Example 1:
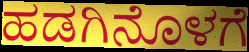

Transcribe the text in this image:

ಹಡಗಿನೊಳಗೆ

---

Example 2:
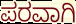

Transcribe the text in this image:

ಪರವಾಗಿ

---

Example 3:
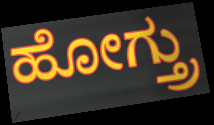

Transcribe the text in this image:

ಹೋಗ್ತ್ರು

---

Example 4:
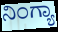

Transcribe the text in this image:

ನಿಂಗ್ಯಾ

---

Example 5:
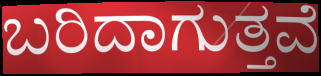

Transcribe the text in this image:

ಬರಿದಾಗುತ್ತವೆ